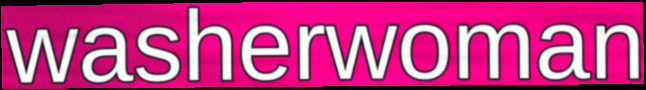
washerwoman